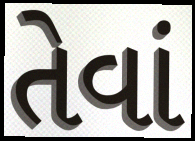
તેવાં